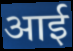
आई